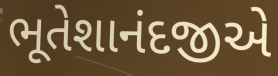
ભૂતેશાનંદજીએ